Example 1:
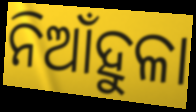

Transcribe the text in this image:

ନିଆଁହୁଳା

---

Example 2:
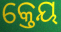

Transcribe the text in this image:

କ୍ତେୟ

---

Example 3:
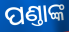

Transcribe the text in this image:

ପଣ୍ତାଙ୍କ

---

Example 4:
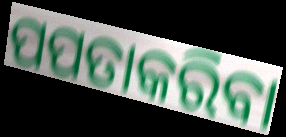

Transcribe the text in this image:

ପପତାକରିବା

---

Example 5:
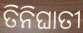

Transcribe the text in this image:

ତିନିଘାତୀ